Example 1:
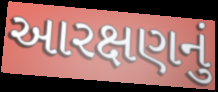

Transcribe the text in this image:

આરક્ષણનું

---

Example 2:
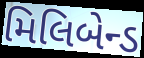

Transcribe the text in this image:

મિલિબેન્ડ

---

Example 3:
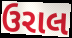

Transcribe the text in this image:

ઉરાલ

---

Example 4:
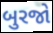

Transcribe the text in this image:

બુરજો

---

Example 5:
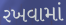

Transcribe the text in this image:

રખવામાં